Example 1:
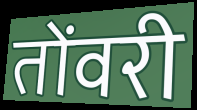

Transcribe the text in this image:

तोंवरी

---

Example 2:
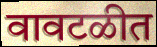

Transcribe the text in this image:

वावटळीत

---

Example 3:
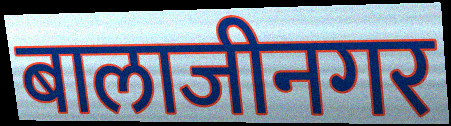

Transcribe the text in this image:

बालाजीनगर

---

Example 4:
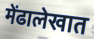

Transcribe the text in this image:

मेंढालेखात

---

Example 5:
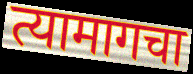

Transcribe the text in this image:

त्यामागचा